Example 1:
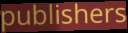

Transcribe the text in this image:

publishers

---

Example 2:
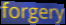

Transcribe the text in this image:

forgery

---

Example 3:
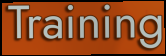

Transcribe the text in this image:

Training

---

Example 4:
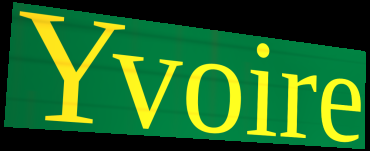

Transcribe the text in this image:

Yvoire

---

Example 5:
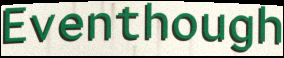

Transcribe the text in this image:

Eventhough